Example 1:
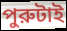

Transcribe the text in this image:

পুরুটাই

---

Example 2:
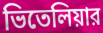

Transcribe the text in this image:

ভিতেলিয়ার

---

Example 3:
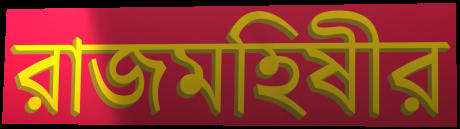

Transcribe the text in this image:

রাজমহিষীর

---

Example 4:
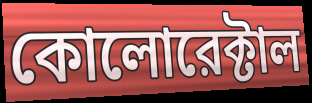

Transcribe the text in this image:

কোলোরেক্টাল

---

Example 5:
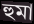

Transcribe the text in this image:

হুমা